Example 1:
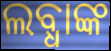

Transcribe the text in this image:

ଲବ୍ଧାଙ୍କ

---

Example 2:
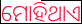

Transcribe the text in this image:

ମୋହିଥାଏ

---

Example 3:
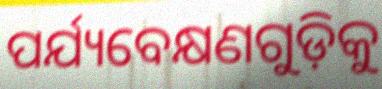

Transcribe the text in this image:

ପର୍ଯ୍ୟବେକ୍ଷଣଗୁଡ଼ିକୁ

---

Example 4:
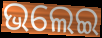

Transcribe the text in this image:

ଭଲେଇ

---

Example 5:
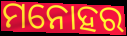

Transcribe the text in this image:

ମନୋହର